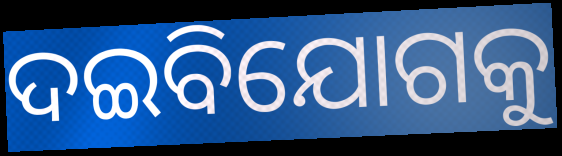
ଦଇବିଯୋଗକୁ